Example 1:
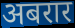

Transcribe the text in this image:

अबरार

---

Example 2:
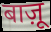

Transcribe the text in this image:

बाज़ू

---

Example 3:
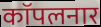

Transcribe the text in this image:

कॉपलनार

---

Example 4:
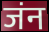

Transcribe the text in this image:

जंन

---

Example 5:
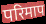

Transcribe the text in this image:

परिमाप